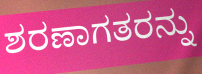
ಶರಣಾಗತರನ್ನು